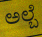
ಅಲ್ಬೆ